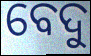
ବେଦୁ